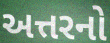
અત્તરનો